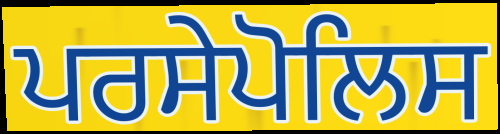
ਪਰਸੇਪੋਲਿਸ